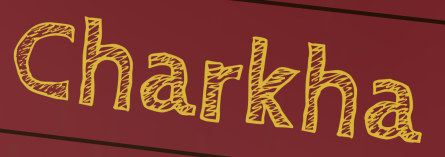
Charkha